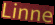
Linne